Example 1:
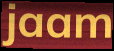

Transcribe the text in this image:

jaam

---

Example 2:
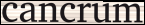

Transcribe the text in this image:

cancrum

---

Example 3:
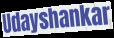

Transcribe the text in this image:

Udayshankar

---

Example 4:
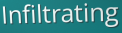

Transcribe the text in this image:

Infiltrating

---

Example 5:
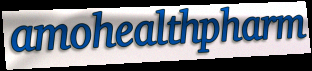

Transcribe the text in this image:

amohealthpharm